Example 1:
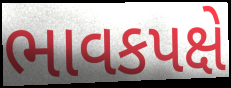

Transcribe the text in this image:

ભાવકપક્ષે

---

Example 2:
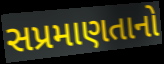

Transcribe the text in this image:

સપ્રમાણતાનો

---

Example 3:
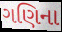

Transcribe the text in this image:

ગણિના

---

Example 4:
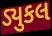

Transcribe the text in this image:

ડ્યુકલ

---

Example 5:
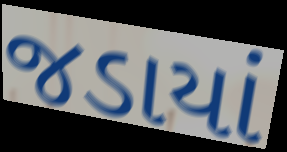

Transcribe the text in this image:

જડાયાં